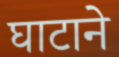
घाटाने